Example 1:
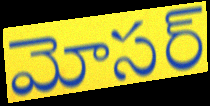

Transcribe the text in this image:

మోసర్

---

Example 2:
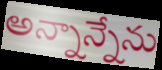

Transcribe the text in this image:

అన్నాన్నేను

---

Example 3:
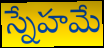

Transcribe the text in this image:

స్నేహమే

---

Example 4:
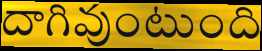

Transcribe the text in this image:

దాగివుంటుంది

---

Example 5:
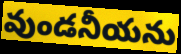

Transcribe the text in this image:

వుండనీయను